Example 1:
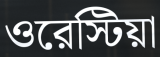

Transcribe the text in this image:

ওরেস্টিয়া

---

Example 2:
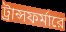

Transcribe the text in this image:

ট্রান্সফর্মারে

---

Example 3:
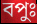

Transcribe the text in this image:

বপুঃ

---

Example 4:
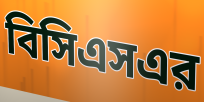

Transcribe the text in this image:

বিসিএসএর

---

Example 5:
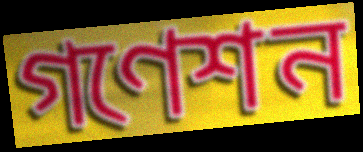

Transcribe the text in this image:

গণেশন